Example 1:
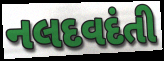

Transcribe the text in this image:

નલદવદંતી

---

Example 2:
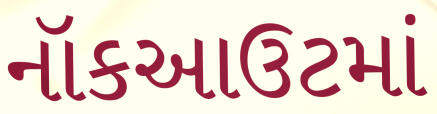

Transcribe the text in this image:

નૉકઆઉટમાં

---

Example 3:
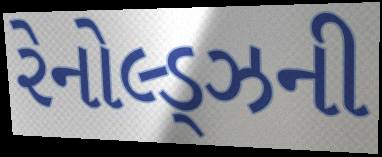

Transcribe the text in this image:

રેનોલ્ડ્ઝની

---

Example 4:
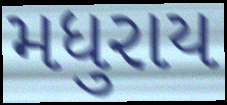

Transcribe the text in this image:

મધુરાય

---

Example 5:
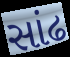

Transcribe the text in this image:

સાંઢ